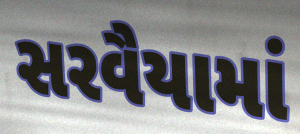
સરવૈયામાં